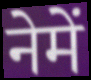
नेमें